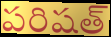
పరిషత్